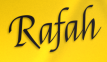
Rafah